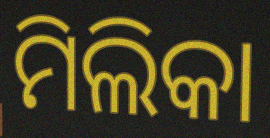
ମିଲିକା